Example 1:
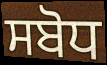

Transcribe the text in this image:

ਸਬੋਧ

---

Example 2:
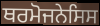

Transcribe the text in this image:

ਥਰਮੋਜਨੇਸਿਸ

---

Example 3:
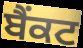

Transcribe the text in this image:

ਬੈਂਕਟ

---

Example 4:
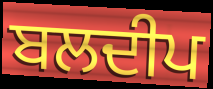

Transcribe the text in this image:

ਬਲਦੀਪ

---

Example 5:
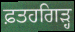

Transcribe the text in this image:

ਫ਼ਤਹਗਿੜ੍ਹ